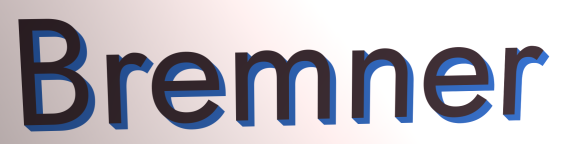
Bremner